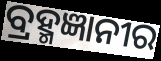
ବ୍ରହ୍ମଜ୍ଞାନୀର